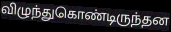
விழுந்துகொண்டிருந்தன